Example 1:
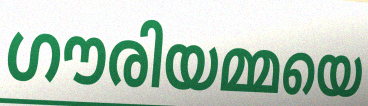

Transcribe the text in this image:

ഗൗരിയമ്മയെ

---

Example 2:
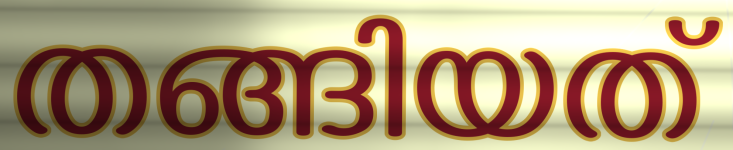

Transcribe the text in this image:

തങ്ങിയത്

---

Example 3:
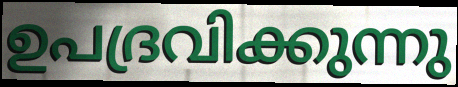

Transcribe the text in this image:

ഉപദ്രവിക്കുന്നു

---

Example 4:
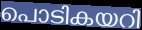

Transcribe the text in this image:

പൊടികയറി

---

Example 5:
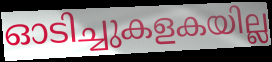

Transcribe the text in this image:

ഓടിച്ചുകളകയില്ല